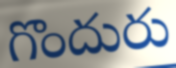
గొందురు